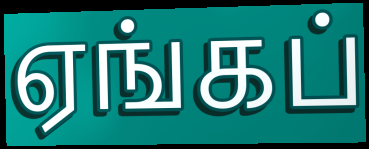
ஏங்கப்